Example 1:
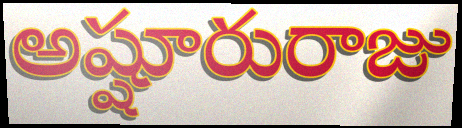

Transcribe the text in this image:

అష్షూరురాజు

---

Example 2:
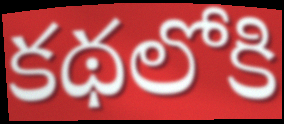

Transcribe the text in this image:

కథలోకి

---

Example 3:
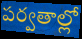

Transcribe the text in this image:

పర్వతాల్లో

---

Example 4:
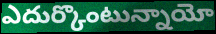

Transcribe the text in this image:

ఎదుర్కొంటున్నాయో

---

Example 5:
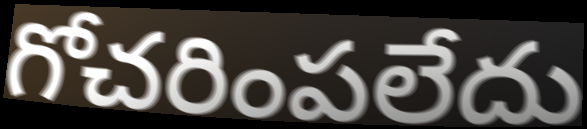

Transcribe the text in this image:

గోచరింపలేదు